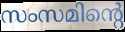
സംസമിന്റെ